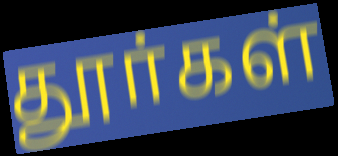
தூர்கள்